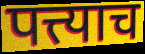
पत्त्याच